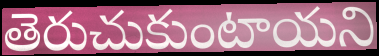
తెరుచుకుంటాయని